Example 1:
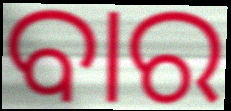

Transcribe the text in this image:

ବାର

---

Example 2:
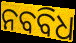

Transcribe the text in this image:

ନବବିଧ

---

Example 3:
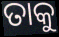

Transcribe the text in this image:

ତାକୁ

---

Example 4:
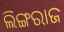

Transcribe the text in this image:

ଲିଙ୍ଗରାଜ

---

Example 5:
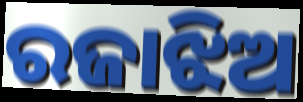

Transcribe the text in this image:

ରଜାଝିଅ